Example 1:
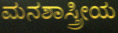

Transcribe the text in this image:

ಮನಶಾಸ್ತ್ರೀಯ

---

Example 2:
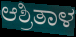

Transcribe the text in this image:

ಆಶ್ರಿತಾಳ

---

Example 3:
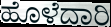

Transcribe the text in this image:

ಹೊಳೆದಾರಿ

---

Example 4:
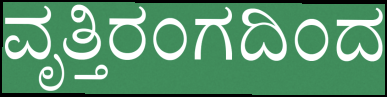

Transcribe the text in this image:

ವೃತ್ತಿರಂಗದಿಂದ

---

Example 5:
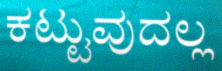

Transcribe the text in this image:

ಕಟ್ಟುವುದಲ್ಲ